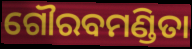
ଗୌରବମଣ୍ଡିତା